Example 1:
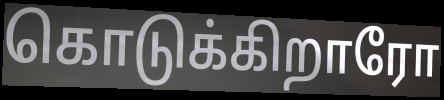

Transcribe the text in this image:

கொடுக்கிறாரோ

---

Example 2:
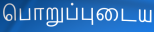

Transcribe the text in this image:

பொறுப்புடைய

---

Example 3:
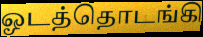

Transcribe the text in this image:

ஓடத்தொடங்கி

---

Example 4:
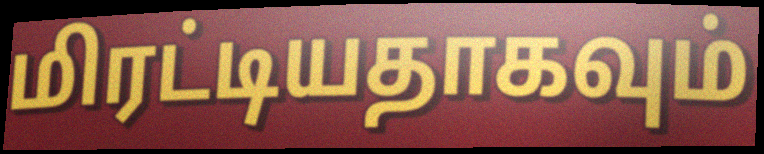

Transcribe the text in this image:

மிரட்டியதாகவும்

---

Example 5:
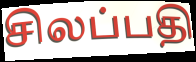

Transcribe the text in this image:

சிலப்பதி